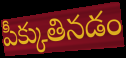
పీక్కుతినడం